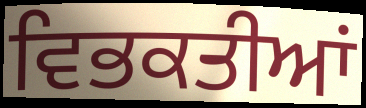
ਵਿਭਕਤੀਆਂ